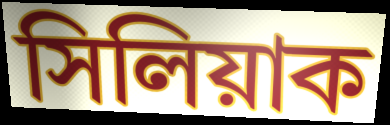
সিলিয়াক